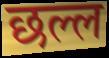
छल्ल